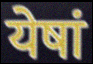
येषां